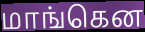
மாங்கென